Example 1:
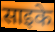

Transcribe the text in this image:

साइके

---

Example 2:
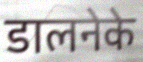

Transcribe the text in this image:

डालनेके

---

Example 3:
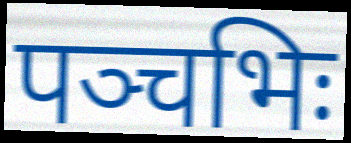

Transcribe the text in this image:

पञ्चभिः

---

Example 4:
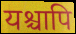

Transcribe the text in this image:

यश्चापि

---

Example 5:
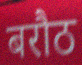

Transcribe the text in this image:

बरौठ